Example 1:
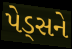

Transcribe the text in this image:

પેડ્સને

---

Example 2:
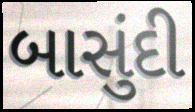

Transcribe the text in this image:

બાસુંદી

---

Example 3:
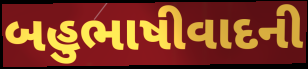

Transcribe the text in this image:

બહુભાષીવાદની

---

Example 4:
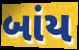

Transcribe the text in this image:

બાંય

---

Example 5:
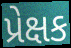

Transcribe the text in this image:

પ્રેક્ષક